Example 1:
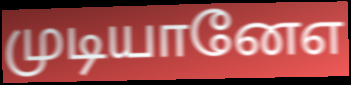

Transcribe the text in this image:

முடியானேஎ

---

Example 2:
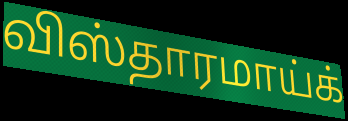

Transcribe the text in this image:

விஸ்தாரமாய்க்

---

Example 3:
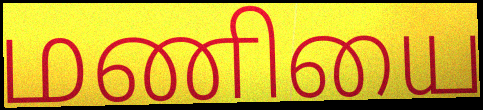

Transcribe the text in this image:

மணியை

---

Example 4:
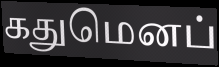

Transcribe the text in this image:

கதுமெனப்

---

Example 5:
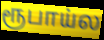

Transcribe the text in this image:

ரூபாய்ல